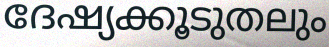
ദേഷ്യക്കൂടുതലും